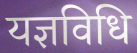
यज्ञविधि